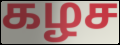
கழச